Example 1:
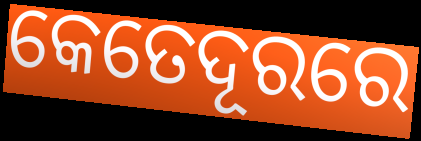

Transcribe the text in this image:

କେତେଦୂରରେ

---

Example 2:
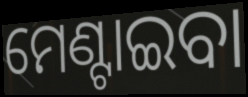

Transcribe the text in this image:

ମେଣ୍ଟାଇବା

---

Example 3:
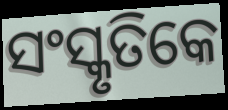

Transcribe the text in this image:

ସଂସ୍କୃତିକେ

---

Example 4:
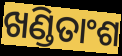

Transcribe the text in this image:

ଖଣ୍ଡିତାଂଶ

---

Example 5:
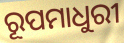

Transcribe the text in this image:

ରୂପମାଧୁରୀ